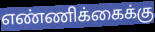
எண்ணிக்கைக்கு